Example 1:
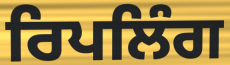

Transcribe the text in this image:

ਰਿਪਲਿੰਗ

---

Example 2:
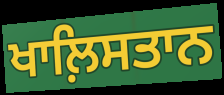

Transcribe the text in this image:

ਖਾਲ਼ਿਸਤਾਨ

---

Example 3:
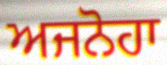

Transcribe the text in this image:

ਅਜਨੋਹਾ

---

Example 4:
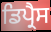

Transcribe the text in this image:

ਡਿਪ੍ਰੈਸ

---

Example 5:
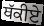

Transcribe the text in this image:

ਥੱਕੀਏ